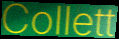
Collett